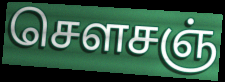
செளசஞ்